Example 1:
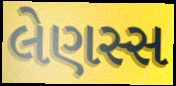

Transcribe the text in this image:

લેણસ્સ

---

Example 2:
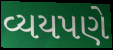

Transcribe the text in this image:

વ્યયપણે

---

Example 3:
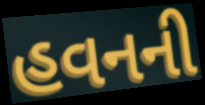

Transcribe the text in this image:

હવનની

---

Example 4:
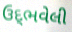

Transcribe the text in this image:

ઉદ્‌ભવેલી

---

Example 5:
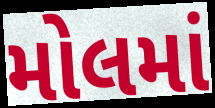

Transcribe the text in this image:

મોલમાં